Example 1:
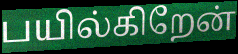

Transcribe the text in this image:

பயில்கிறேன்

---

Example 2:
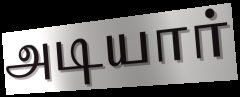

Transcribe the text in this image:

அடியார்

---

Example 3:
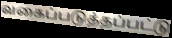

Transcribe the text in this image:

வகைப்படுத்தப்பட்டு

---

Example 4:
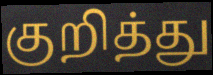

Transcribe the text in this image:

குறித்து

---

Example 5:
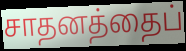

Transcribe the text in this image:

சாதனத்தைப்